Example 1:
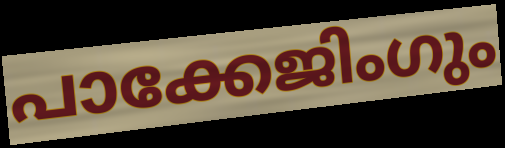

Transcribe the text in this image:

പാക്കേജിംഗും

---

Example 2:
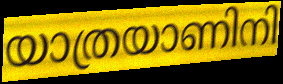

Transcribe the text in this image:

യാത്രയാണിനി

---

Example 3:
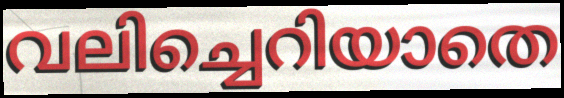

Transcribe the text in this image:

വലിച്ചെറിയാതെ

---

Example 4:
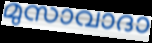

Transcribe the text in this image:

മുസാവാദാ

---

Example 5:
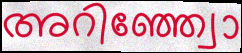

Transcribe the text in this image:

അറിഞ്ഞ്വോ